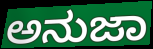
ಅನುಜಾ